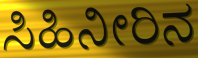
ಸಿಹಿನೀರಿನ